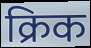
क्रिक